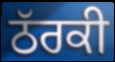
ਠੱਰਕੀ